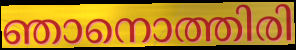
ഞാനൊത്തിരി